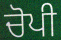
ਚੋਪੀ